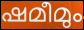
ഷമീമും